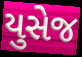
યુસેજ